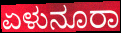
ಏಳುನೂರಾ